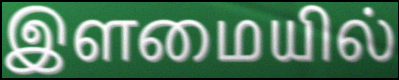
இளமையில்